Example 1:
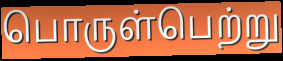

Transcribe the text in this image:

பொருள்பெற்று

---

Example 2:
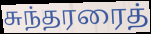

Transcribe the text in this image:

சுந்தரரைத்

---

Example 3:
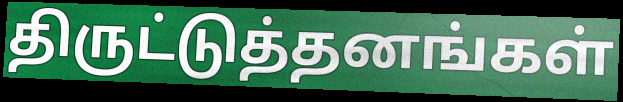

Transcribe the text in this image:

திருட்டுத்தனங்கள்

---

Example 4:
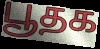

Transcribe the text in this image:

பூதக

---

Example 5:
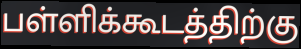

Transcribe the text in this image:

பள்ளிக்கூடத்திற்கு